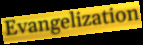
Evangelization